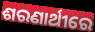
ଶରଣାର୍ଥୀରେ